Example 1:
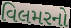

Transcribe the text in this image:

વિલમરનો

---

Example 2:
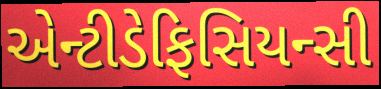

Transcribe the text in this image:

એન્ટીડેફિસિયન્સી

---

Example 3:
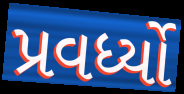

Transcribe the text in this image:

પ્રવર્ધ્યો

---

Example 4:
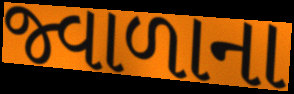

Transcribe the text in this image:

જ્વાળાના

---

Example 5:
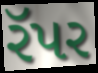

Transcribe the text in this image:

રૅપર